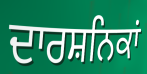
ਦਾਰਸ਼ਨਿਕਾਂ